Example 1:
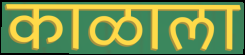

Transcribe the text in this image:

काळाला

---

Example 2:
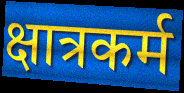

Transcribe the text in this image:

क्षात्रकर्म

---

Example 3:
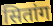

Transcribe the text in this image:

सितांग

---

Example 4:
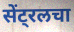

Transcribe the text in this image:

सेंट्रलचा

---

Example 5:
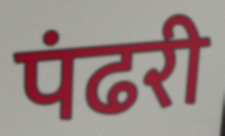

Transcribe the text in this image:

पंढरी